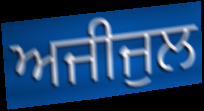
ਅਜੀਜੁਲ